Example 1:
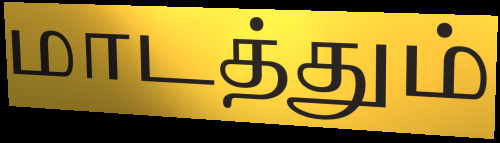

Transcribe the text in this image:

மாடத்தும்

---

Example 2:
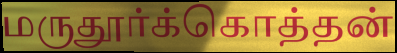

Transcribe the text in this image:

மருதூர்க்கொத்தன்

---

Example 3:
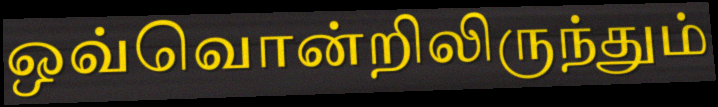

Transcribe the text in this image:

ஒவ்வொன்றிலிருந்தும்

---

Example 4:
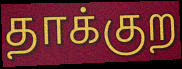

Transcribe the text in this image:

தாக்குற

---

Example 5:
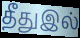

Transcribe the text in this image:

தீதுஇல்